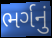
ભર્ગનું